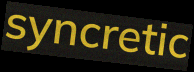
syncretic